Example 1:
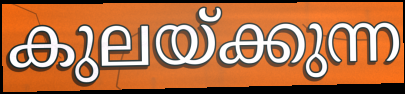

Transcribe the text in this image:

കുലയ്ക്കുന്ന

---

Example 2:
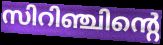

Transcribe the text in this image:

സിറിഞ്ചിന്റെ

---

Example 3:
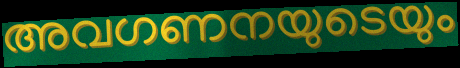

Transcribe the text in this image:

അവഗണനയുടെയും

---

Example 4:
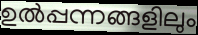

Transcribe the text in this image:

ഉൽപ്പന്നങ്ങളിലും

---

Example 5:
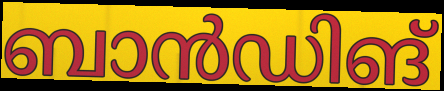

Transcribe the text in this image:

ബാൻഡിങ്